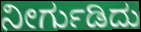
ನೀರ್ಗುಡಿದು